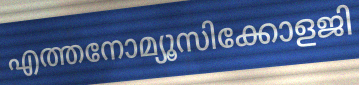
എത്തനോമ്യൂസിക്കോളജി